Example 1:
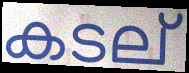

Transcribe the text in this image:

കടല്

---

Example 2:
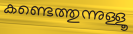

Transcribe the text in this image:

കണ്ടെത്തുന്നുള്ളൂ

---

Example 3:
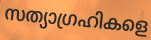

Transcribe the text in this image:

സത്യാഗ്രഹികളെ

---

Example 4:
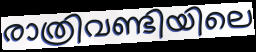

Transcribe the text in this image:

രാത്രിവണ്ടിയിലെ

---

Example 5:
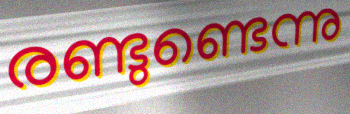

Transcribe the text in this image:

രണ്ടുണ്ടെന്നു